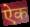
ऐक